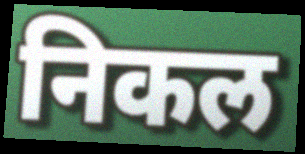
निकल